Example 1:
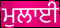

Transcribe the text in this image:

ਮੁਲਾਈ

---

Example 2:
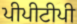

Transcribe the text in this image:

ਪੀਪੀਟੀਪੀ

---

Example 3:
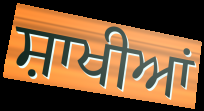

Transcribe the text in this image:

ਸ਼ਾਖੀਆਂ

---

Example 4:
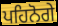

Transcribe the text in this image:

ਪਹਿਨੋਗੇ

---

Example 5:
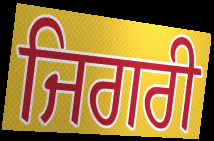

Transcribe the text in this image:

ਜਿਗਰੀ